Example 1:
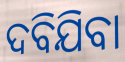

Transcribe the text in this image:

ଦବିଯିବା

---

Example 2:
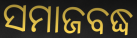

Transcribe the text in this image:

ସମାଜବଦ୍ଧ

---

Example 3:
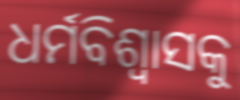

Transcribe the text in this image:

ଧର୍ମବିଶ୍ୱାସକୁ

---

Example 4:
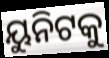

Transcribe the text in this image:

ୟୁନିଟକୁ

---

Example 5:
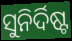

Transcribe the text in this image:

ସୁନିର୍ଦିଷ୍ଟ